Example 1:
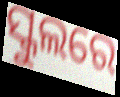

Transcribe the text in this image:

ସ୍କୁଲରେ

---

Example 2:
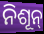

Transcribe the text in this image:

ନିଶୂନ୍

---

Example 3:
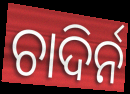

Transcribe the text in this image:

ଚାଦିର୍ନ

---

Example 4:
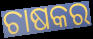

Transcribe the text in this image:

ଚାଷକର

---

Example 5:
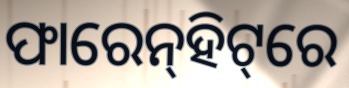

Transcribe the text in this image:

ଫାରେନ୍‌ହିଟ୍‌ରେ